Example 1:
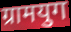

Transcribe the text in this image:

ग्रामयुग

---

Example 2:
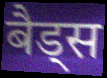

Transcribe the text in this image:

बैड्स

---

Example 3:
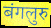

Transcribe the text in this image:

बंगलुरु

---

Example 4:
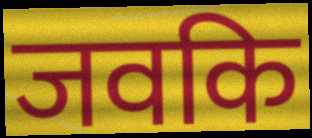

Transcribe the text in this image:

जवकि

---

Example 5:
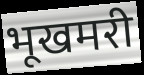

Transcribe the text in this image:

भूखमरी